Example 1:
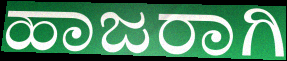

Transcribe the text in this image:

ಹಾಜರಾಗಿ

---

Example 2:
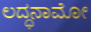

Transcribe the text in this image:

ಲದ್ಧನಾಮೋ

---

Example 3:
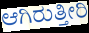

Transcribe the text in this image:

ಆಗಿರುತ್ತೀರಿ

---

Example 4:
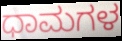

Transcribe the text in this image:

ಧಾಮಗಳ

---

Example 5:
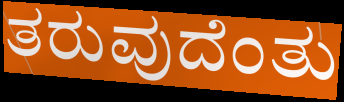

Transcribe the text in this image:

ತರುವುದೆಂತು